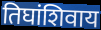
तिघांशिवाय